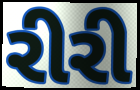
રીરી